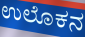
ಉಲೊಕನ